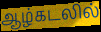
ஆழ்கடலில்